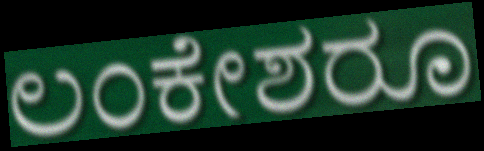
ಲಂಕೇಶರೂ